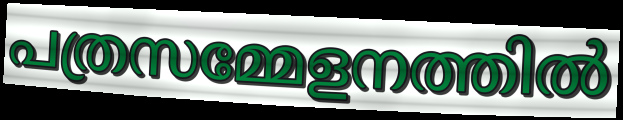
പത്രസമ്മേളനത്തിൽ